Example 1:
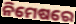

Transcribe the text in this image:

ନିମେଷରେ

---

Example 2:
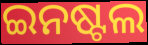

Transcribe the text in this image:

ଇନଷ୍ଟଲ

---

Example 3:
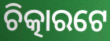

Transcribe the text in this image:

ଚିତ୍କାରଟେ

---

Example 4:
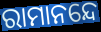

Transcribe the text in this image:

ରାମାନନ୍ଦେ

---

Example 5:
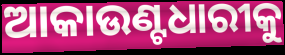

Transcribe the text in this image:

ଆକାଉଣ୍ଟଧାରୀକୁ